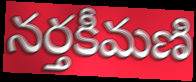
నర్తకీమణి